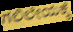
ಗಲಿಲೇಯಕ್ಕೆ